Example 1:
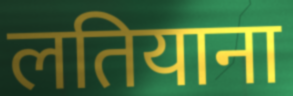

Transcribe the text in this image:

लतियाना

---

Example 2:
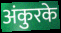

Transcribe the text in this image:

अंकुरके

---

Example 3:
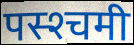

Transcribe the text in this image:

पस्श्चमी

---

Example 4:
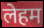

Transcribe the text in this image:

लेहम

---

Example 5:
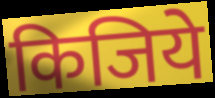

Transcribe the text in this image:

किजिये